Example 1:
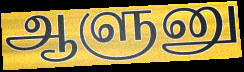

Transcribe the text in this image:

ஆளுனு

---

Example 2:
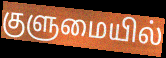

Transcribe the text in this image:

குளுமையில்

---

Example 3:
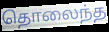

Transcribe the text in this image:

தொலைந்த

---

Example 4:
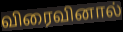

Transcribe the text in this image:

விரைவினால்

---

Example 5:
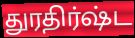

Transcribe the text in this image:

துரதிர்ஷ்ட